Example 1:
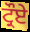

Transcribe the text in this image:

ਟ੍ਰੌਏ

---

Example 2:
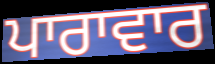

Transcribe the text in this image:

ਪਾਰਾਵਾਰ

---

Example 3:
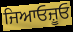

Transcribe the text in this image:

ਜਿਆਓਜ਼ੂਓ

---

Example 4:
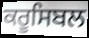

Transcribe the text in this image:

ਕਰੂਸਿਬਲ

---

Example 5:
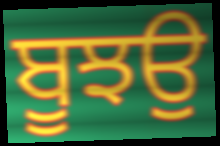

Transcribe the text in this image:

ਬੂਝਉ